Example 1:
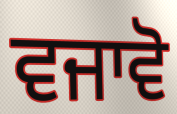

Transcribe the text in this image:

ਵਜਾਵੋ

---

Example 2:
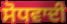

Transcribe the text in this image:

ਸੋਧਵਾਦੀ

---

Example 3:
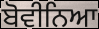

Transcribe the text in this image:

ਬੋਵੀਨਿਆ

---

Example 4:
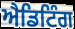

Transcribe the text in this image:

ਐਡਿਟਿੰਗ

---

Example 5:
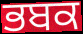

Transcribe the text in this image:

ਭਬਕ